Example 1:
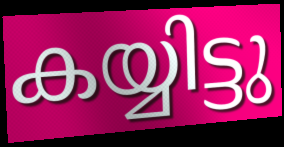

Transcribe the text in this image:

കയ്യിട്ടു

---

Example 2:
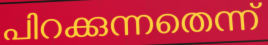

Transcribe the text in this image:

പിറക്കുന്നതെന്ന്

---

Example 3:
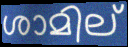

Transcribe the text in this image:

ശാമില്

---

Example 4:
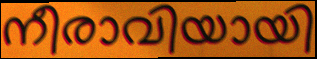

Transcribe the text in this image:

നീരാവിയായി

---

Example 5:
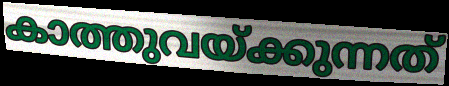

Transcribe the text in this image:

കാത്തുവയ്ക്കുന്നത്